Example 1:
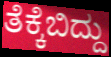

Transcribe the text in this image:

ತೆಕ್ಕೆಬಿದ್ದು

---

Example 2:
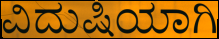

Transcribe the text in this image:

ವಿದುಷಿಯಾಗಿ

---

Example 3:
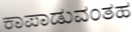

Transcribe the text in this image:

ಕಾಪಾಡುವಂತಹ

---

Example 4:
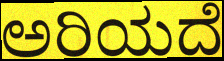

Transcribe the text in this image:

ಅರಿಯದೆ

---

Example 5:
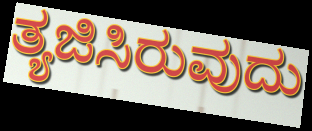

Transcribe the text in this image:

ತ್ಯಜಿಸಿರುವುದು